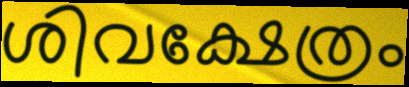
ശിവക്ഷേത്രം